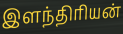
இளந்திரியன்